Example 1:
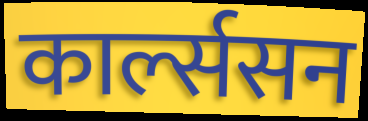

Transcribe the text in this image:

कार्ल्ससन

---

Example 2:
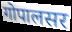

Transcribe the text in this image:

गोपालसर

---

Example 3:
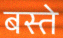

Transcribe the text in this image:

बस्ते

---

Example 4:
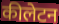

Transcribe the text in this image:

कीलेटन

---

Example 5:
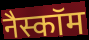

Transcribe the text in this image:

नैस्कॉम